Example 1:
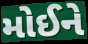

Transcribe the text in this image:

મોઈને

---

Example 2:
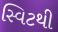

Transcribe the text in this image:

સ્વિટથી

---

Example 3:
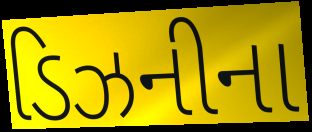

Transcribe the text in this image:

ડિઝનીના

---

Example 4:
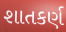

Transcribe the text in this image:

શાતકર્ણ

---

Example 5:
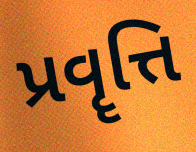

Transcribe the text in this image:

પ્રવૄત્તિ